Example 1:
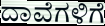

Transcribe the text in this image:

ದಾವೆಗಳಿಗೆ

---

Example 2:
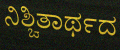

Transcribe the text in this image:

ನಿಶ್ಚಿತಾರ್ಥದ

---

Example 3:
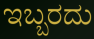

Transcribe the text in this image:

ಇಬ್ಬರದು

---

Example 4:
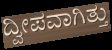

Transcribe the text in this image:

ದ್ವೀಪವಾಗಿತ್ತು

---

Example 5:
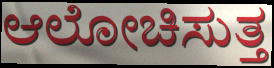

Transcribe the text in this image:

ಆಲೋಚಿಸುತ್ತ